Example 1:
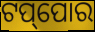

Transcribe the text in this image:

ଟପ୍‌ପୋର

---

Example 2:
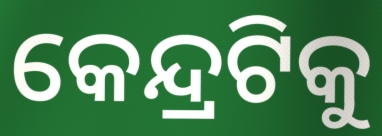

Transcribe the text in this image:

କେନ୍ଦ୍ରଟିକୁ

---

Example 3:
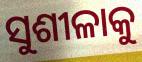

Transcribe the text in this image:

ସୁଶୀଳାକୁ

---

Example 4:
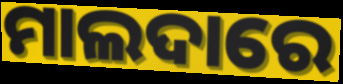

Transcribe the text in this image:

ମାଲଦାରେ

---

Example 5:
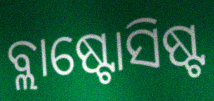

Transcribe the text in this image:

ବ୍ଲାଷ୍ଟୋସିଷ୍ଟ